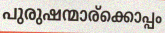
പുരുഷന്മാര്ക്കൊപ്പം